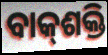
ବାକ୍‍ଶକ୍ତି